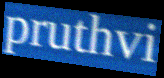
pruthvi